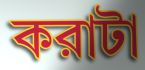
করাটা